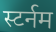
स्टर्नम